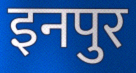
इनपुर